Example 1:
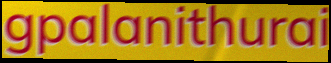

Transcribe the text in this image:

gpalanithurai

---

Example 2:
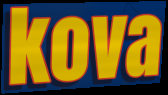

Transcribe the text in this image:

kova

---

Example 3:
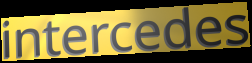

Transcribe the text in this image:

intercedes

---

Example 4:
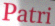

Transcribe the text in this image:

Patri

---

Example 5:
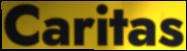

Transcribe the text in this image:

Caritas